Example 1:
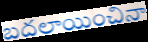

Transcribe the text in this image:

బదలాయించినా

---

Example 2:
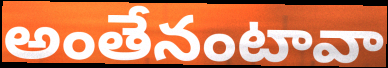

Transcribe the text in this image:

అంతేనంటావా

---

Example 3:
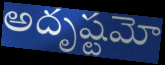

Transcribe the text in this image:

అదృష్టమో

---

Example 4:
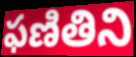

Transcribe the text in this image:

ఫణితిని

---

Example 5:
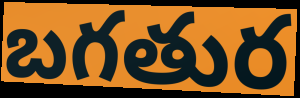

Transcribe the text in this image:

బగతుర